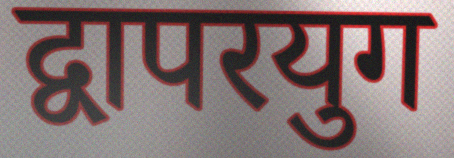
द्वापरयुग